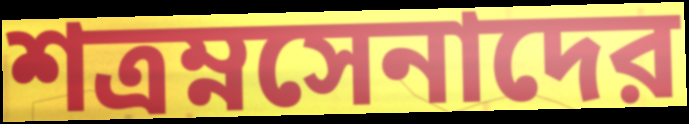
শত্রম্নসেনাদের